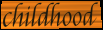
childhood